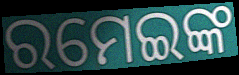
ରମେଇଙ୍କ